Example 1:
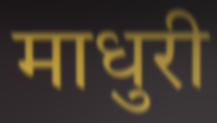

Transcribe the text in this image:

माधुरी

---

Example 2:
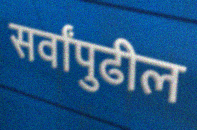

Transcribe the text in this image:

सर्वांपुढील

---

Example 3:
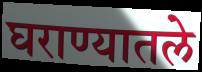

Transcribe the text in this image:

घराण्यातले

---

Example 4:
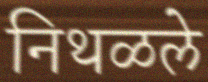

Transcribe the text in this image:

निथळले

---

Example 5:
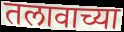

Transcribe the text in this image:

तलावाच्या